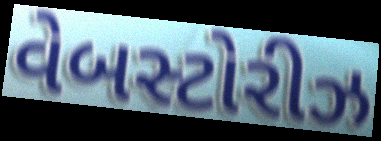
વેબસ્ટોરીઝ